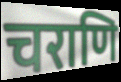
चराणि